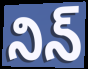
నిన్